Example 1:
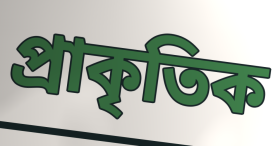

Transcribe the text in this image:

প্ৰাকৃতিক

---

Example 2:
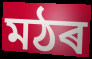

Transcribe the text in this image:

মঠৰ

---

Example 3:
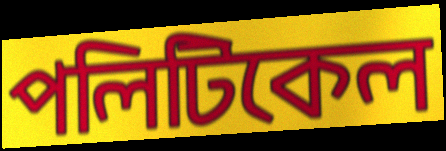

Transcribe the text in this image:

পলিটিকেল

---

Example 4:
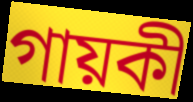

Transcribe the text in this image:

গায়কী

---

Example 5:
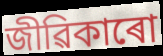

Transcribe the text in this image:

জীৱিকাৰো